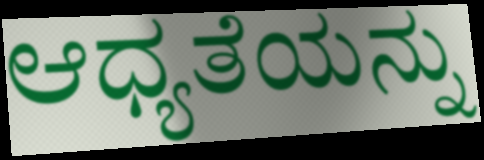
ಆಧ್ಯತೆಯನ್ನು